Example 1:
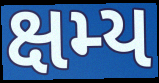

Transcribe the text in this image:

ક્ષમ્ય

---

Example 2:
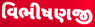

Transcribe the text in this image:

વિભીષણજી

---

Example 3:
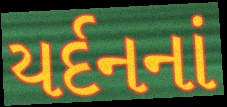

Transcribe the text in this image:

યર્દનનાં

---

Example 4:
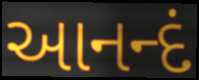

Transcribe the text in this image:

આનન્દં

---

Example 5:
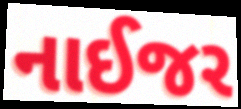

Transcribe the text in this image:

નાઈજર